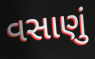
વસાણું